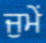
ਜੁਮੇਂ